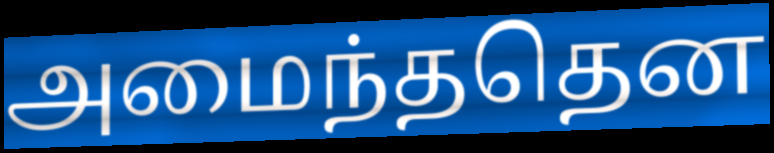
அமைந்ததென